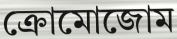
ক্রোমোজোম